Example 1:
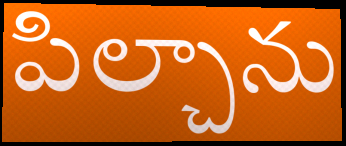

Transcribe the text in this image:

పిల్చాను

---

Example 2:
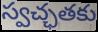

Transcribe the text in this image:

స్వచ్ఛతకు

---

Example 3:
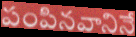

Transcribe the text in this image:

పంపినవానినే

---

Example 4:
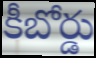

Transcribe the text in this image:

కీబోర్డు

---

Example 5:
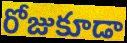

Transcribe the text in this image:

రోజుకూడా